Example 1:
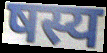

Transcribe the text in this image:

षस्य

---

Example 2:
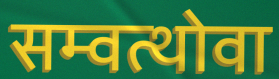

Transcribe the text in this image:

सम्वत्थोवा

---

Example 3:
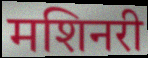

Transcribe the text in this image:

मशिनरी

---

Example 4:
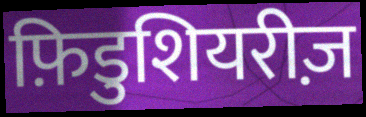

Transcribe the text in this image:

फ़िडुशियरीज़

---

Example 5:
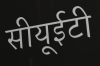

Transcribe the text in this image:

सीयूईटी